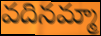
వదినమ్మా